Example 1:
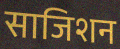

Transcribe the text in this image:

साजिशन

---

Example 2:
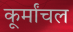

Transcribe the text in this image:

कूर्मांचल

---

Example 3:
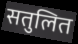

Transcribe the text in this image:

सतुलित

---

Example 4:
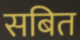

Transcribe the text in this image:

सबित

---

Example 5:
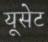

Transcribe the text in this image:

यूसेट